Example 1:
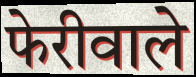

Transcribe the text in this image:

फेरीवाले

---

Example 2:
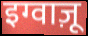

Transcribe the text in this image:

इग्वाज़ू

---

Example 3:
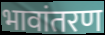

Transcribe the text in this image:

भावांतरण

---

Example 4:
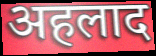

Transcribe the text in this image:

अहलाद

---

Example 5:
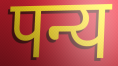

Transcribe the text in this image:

पन्य